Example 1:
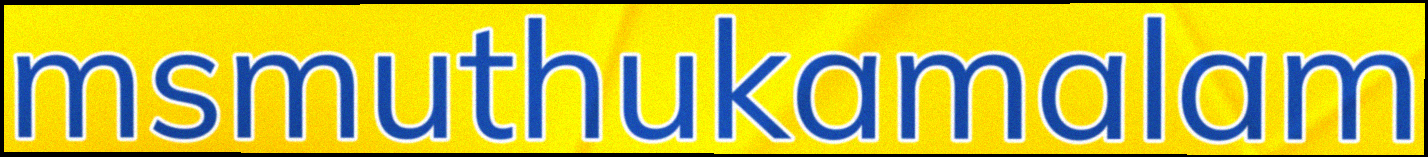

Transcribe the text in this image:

msmuthukamalam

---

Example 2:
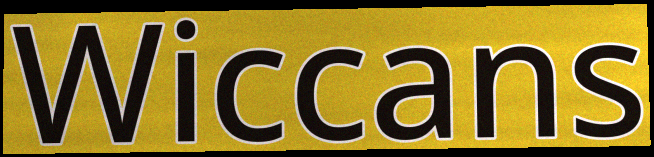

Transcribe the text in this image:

Wiccans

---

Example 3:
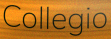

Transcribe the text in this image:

Collegio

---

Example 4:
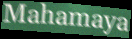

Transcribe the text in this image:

Mahamaya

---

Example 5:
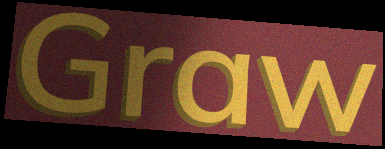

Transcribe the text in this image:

Graw